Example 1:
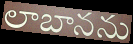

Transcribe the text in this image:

లాబానను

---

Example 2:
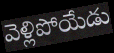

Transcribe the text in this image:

వెళ్లిపోయేడు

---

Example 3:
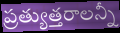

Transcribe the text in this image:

ప్రత్యుత్తరాలన్నీ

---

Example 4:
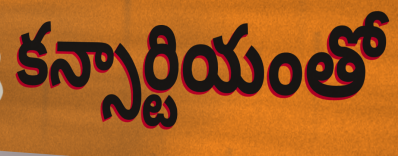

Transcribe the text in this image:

కన్సార్టియంతో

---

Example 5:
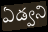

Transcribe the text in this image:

ఏడ్వని